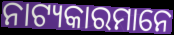
ନାଟ୍ୟକାରମାନେ